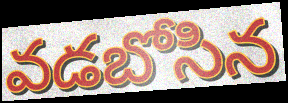
వడబోసిన